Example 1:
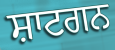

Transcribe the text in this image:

ਸ਼ਾਟਗਨ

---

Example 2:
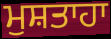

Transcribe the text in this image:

ਮੁਸ਼ਤਾਹਾ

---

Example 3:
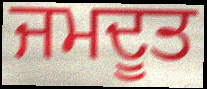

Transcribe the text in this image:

ਜਮਦੂਤ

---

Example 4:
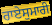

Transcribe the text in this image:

ਰਾਏਸੁਮਾਰੀ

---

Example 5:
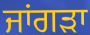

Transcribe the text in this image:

ਜਾਂਗੜਾ